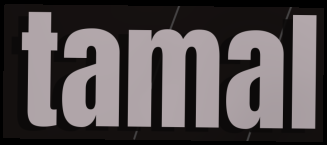
tamal